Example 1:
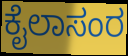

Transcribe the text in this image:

ಕೈಲಾಸಂರ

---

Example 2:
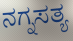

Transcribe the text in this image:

ನಗ್ನಸತ್ಯ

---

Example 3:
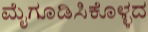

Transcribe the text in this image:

ಮೈಗೂಡಿಸಿಕೊಳ್ಳದ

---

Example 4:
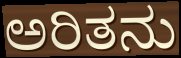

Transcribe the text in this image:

ಅರಿತನು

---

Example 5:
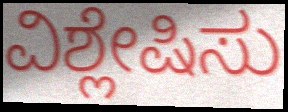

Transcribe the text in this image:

ವಿಶ್ಲೇಷಿಸು